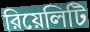
রিয়েলিটি